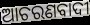
ଆଚରଣବାଦୀ